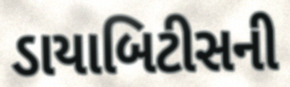
ડાયાબિટીસની